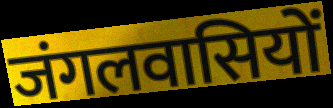
जंगलवासियों